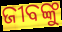
ଜୀବଙ୍କୁ